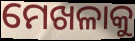
ମେଖଳାକୁ